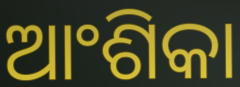
ଆଂଶିକା